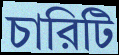
চারিটি